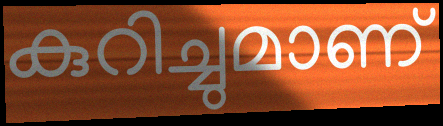
കുറിച്ചുമാണ്